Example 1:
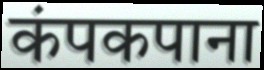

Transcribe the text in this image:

कंपकपाना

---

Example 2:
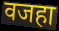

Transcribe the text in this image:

वजहा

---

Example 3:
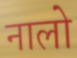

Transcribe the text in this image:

नालो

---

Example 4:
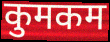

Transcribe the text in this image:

कुमकम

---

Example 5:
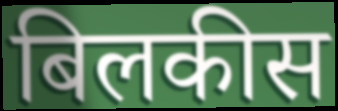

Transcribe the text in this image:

बिलकीस